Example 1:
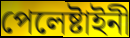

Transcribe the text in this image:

পেলেষ্টাইনী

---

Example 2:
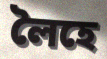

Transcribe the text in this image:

লৈহে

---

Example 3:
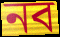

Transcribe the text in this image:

নব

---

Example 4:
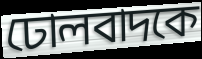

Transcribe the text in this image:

ঢোলবাদকে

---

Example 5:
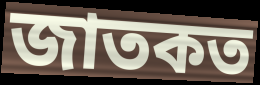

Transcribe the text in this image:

জাতকত